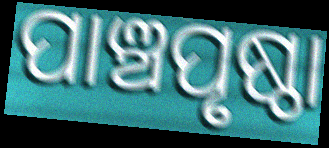
ପାଞ୍ଚପୃଷ୍ଠା